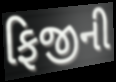
ફિજીની